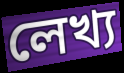
লেখ্য